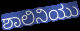
ಶಾಲಿನಿಯು